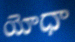
యోధా